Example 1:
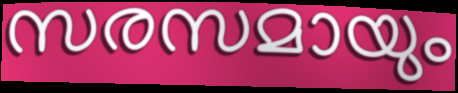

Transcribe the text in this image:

സരസമായും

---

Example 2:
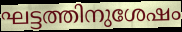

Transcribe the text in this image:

ഘട്ടത്തിനുശേഷം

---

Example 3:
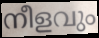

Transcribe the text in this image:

നീളവും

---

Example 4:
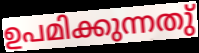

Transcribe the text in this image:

ഉപമിക്കുന്നതു്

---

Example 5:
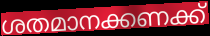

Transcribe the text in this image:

ശതമാനക്കണക്ക്